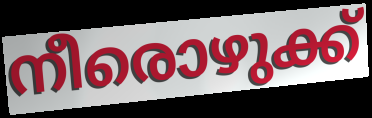
നീരൊഴുക്ക്